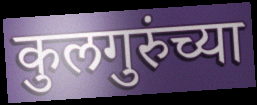
कुलगुरुंच्या